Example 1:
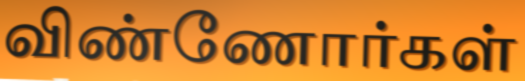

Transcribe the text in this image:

விண்ணோர்கள்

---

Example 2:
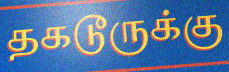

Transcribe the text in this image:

தகடூருக்கு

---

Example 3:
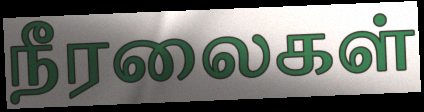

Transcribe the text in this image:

நீரலைகள்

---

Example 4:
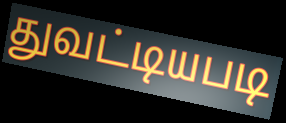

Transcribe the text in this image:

துவட்டியபடி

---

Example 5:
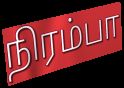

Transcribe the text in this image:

நிரம்பா